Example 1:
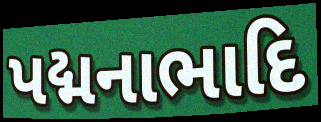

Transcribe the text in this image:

પદ્મનાભાદિ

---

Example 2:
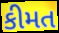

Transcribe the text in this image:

કીમત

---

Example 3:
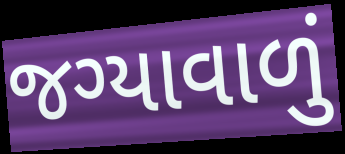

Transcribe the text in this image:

જગ્યાવાળું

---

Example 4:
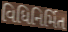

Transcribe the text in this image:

વિધિનિર્મિત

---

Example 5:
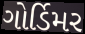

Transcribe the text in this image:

ગોર્ડિમર